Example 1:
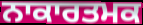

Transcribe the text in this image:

ਨਾਕਾਰਤਮਕ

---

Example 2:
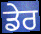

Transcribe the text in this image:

ਡੇਰ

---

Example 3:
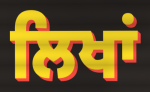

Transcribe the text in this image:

ਲਿਖਾਂ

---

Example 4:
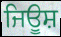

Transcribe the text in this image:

ਜਿਊਸ਼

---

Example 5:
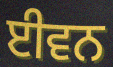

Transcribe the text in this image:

ਈਵਨ